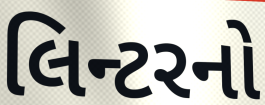
લિન્ટરનો